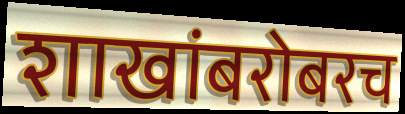
शाखांबरोबरच